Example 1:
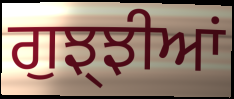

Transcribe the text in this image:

ਗੁਝ੍ਝੀਆਂ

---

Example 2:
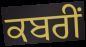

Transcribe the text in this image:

ਕਬਰੀਂ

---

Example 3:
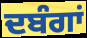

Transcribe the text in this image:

ਦਬੰਗਾਂ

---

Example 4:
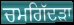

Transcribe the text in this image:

ਚਮਗਿੱਦੜਾ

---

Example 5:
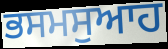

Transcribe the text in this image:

ਭਸਮਸੁਆਹ